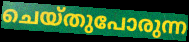
ചെയ്തുപോരുന്ന